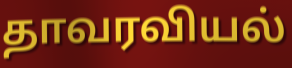
தாவரவியல்